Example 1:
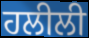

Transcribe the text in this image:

ਹਲੀਲੀ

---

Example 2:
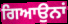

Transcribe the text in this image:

ਗਿਆਉਨਾਂ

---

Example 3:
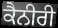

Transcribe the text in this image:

ਕੈਨੀਰੀ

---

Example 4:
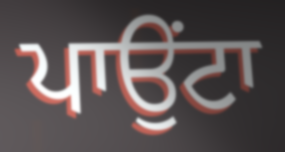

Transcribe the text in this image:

ਪਾਉੰਟਾ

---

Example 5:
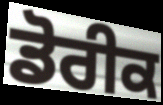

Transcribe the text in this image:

ਡੋਰੀਕ